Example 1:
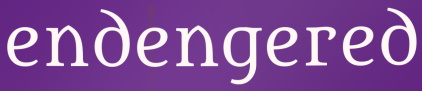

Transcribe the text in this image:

endengered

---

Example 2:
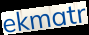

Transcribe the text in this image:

ekmatr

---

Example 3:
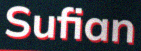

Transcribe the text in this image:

Sufian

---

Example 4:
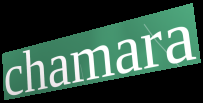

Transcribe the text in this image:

chamara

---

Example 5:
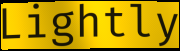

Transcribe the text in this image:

Lightly